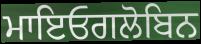
ਮਾਇਓਗਲੋਬਿਨ